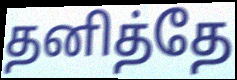
தனித்தே